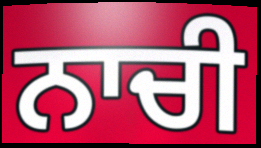
ਨਾਚੀ